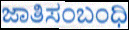
ಜಾತಿಸಂಬಂಧಿ